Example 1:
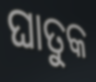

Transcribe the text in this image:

ଘାତୁକ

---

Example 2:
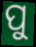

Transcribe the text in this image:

ପୁ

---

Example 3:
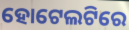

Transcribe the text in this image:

ହୋଟେଲଟିରେ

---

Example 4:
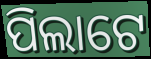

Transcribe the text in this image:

ପିଲାଟେ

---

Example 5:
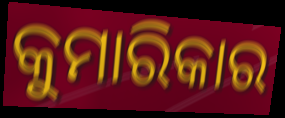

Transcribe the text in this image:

କୁମାରିକାର